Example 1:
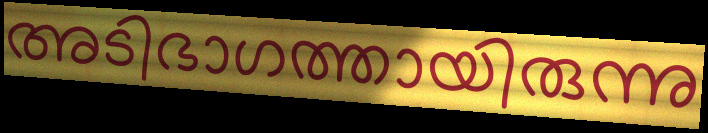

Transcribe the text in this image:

അടിഭാഗത്തായിരുന്നു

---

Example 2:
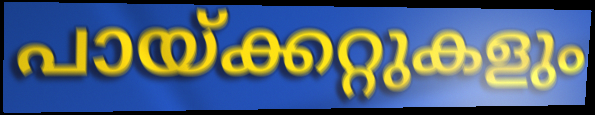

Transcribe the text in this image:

പായ്ക്കറ്റുകളും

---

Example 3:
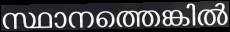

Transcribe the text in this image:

സ്ഥാനത്തെങ്കിൽ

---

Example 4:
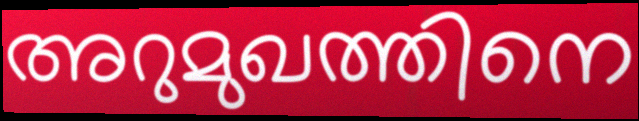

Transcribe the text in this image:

അറുമുഖത്തിനെ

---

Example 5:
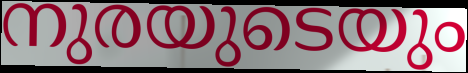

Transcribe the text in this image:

നുരയുടെയും